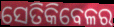
ସେତିକିବେଳର